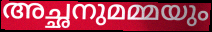
അച്ഛനുമമ്മയും